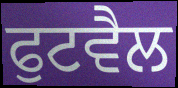
ਫੁਟਵੈਲ